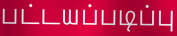
பட்டயப்படிப்பு